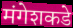
मंगेशकडे